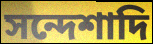
সন্দেশাদি